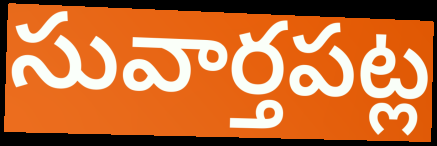
సువార్తపట్ల